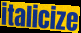
italicize